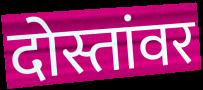
दोस्तांवर